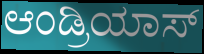
ಆಂಡ್ರಿಯಾಸ್